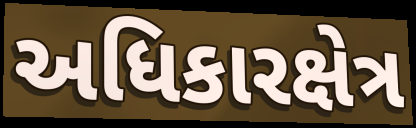
અધિકારક્ષેત્ર